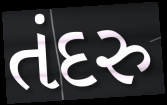
તંદરુ